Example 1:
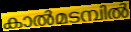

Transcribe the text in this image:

കാൽമടമ്പിൽ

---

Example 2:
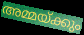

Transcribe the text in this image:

അമ്മയ്ക്കും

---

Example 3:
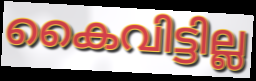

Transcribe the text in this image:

കൈവിട്ടില്ല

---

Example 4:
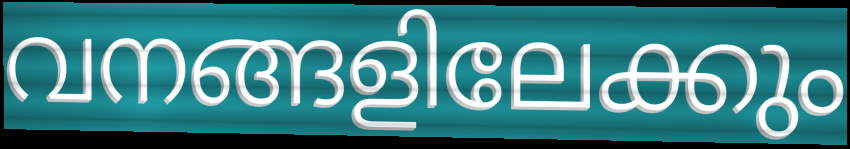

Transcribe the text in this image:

വനങ്ങളിലേക്കും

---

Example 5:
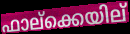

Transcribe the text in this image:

ഫാല്ക്കെയില്